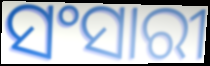
ସଂସାରୀ